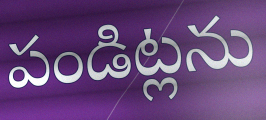
పండిట్లను